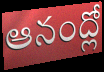
ఆనంద్లో